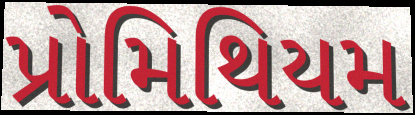
પ્રોમિથિયમ